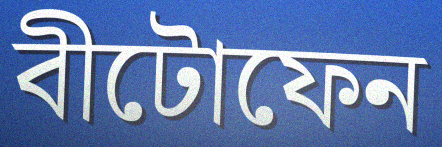
বীটোফেন